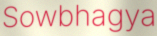
Sowbhagya